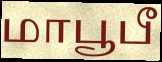
மாபூபீ